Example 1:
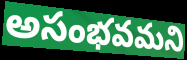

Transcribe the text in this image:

అసంభవమని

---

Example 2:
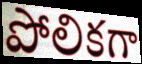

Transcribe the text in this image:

పోలికగా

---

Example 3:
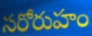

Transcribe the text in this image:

సరోరుహం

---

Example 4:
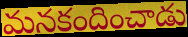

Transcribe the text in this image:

మనకందించాడు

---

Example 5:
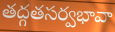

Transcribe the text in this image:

తద్గతసర్వభావా